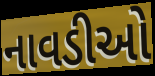
નાવડીઓ